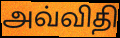
அவ்விதி